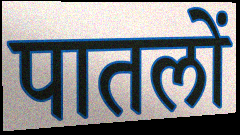
पातलों